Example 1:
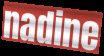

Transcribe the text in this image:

nadine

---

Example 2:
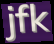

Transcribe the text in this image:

jfk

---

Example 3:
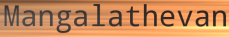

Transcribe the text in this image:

Mangalathevan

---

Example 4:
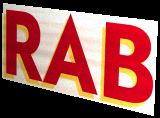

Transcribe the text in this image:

RAB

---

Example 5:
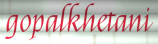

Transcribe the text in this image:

gopalkhetani